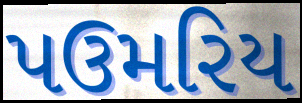
પઉમરિય